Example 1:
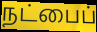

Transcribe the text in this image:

நட்பைப்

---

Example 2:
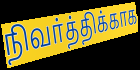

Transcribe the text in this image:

நிவர்த்திக்காக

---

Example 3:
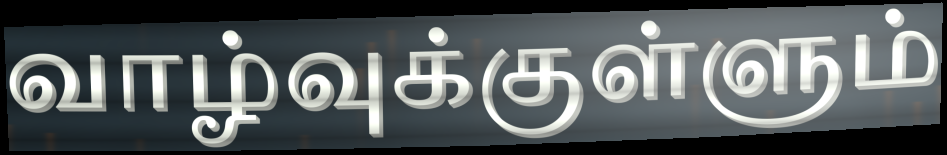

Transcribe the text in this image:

வாழ்வுக்குள்ளும்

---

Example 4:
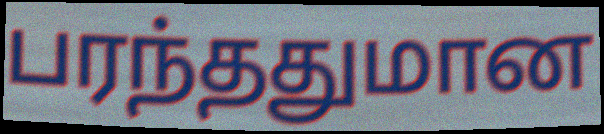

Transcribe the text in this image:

பரந்ததுமான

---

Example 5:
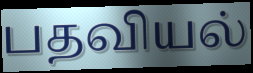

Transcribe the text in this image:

பதவியல்